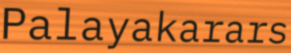
Palayakarars